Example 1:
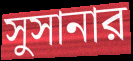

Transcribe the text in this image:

সুসানার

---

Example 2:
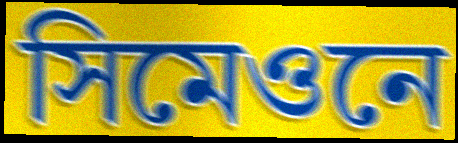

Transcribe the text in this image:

সিমেওনে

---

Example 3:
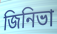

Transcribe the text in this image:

জিনিভা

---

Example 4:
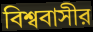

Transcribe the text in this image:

বিশ্ববাসীর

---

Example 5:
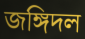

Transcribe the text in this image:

জঙ্গিদল